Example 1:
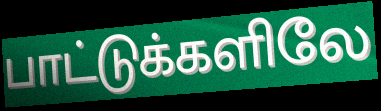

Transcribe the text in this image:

பாட்டுக்களிலே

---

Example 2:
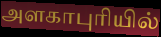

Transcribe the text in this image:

அளகாபுரியில்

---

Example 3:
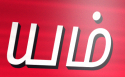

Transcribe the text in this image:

யம்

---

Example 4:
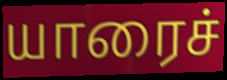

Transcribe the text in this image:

யாரைச்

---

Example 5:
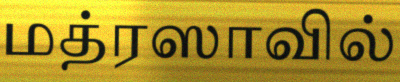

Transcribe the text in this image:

மத்ரஸாவில்